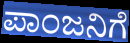
ಪಾಂಜನಿಗೆ